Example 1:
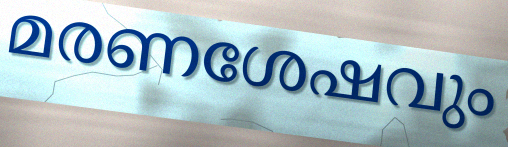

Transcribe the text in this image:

മരണശേഷവും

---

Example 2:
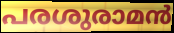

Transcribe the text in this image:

പരശുരാമൻ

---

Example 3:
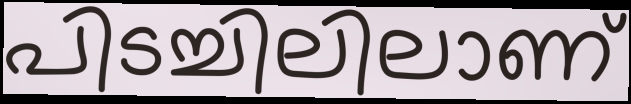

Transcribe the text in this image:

പിടച്ചിലിലാണ്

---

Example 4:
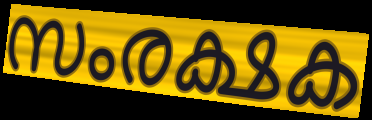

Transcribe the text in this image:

സംരക്ഷക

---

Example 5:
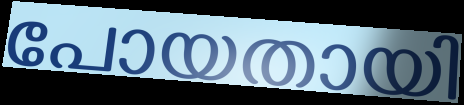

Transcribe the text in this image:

പോയതായി